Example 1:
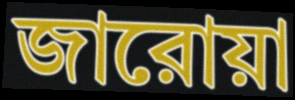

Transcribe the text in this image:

জারোয়া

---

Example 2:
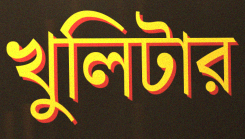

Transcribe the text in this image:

খুলিটার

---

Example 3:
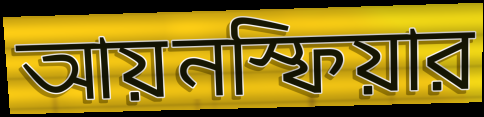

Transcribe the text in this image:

আয়নস্ফিয়ার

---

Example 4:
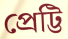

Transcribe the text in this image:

প্রেট্টি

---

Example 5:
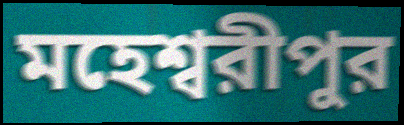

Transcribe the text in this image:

মহেশ্বরীপুর